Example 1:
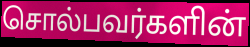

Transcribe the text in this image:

சொல்பவர்களின்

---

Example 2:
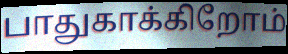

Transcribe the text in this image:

பாதுகாக்கிறோம்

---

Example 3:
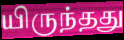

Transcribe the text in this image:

யிருந்தது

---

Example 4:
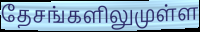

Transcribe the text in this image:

தேசங்களிலுமுள்ள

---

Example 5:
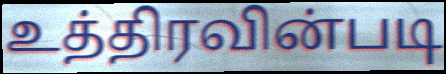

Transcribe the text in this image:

உத்திரவின்படி